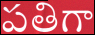
పతిగా